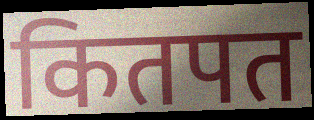
कितपत